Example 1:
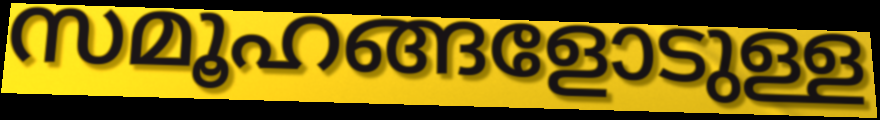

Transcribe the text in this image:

സമൂഹങ്ങളോടുള്ള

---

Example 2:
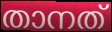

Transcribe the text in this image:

താനത്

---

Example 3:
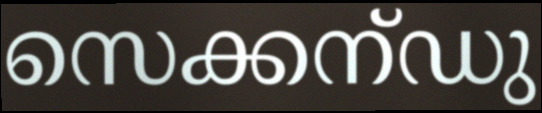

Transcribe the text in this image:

സെക്കന്ഡു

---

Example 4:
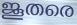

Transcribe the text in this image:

ജൂതരെ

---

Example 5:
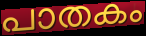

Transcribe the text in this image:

പാതകം